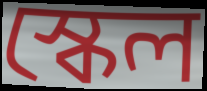
স্কেল